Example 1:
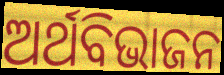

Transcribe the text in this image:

ଅର୍ଥବିଭାଜନ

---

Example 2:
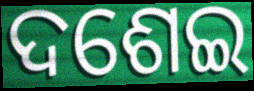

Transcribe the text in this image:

ଦଶେଇ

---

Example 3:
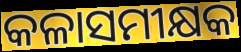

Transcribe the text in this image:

କଳାସମୀକ୍ଷକ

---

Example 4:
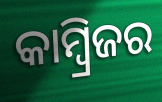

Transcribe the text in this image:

କାମ୍ବ୍ରିଜର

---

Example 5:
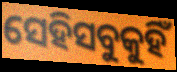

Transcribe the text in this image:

ସେହିସବୁକୁହିଁ